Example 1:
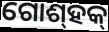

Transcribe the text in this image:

ଗୋଶ୍‍ହକ୍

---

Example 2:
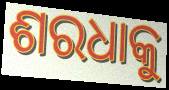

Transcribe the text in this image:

ଶରଧାକୁ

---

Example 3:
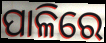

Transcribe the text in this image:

ପାଳିରେ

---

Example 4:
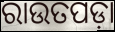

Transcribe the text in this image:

ରାଉତପଡ଼ା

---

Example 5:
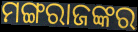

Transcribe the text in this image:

ମଙ୍ଗରାଜଙ୍କର